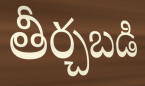
తీర్చబడి